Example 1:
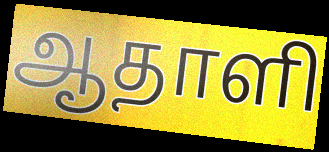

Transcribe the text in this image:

ஆதாளி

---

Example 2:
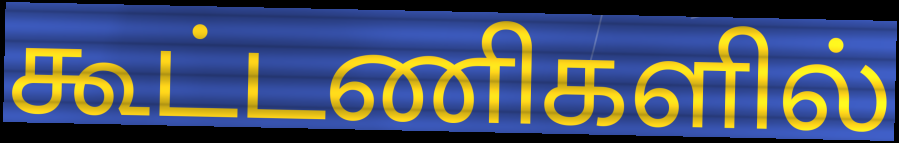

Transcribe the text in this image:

கூட்டணிகளில்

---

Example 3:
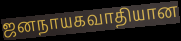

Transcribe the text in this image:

ஜனநாயகவாதியான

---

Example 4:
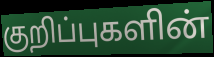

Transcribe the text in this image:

குறிப்புகளின்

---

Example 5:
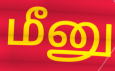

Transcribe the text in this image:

மீனு